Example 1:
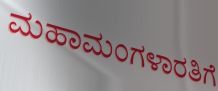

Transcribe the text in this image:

ಮಹಾಮಂಗಳಾರತಿಗೆ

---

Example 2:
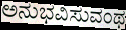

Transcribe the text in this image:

ಅನುಭವಿಸುವಂಥ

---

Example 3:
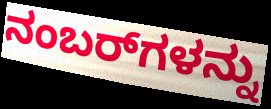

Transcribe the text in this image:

ನಂಬರ್‌ಗಳನ್ನು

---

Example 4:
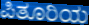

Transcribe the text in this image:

ಪಿತೂರಿಯ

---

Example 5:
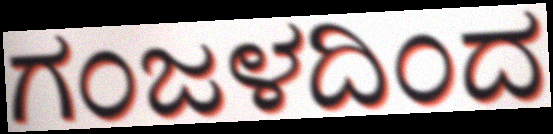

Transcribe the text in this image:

ಗಂಜಳದಿಂದ